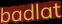
badlat